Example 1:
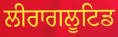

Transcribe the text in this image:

ਲੀਰਾਗਲੂਟਿਡ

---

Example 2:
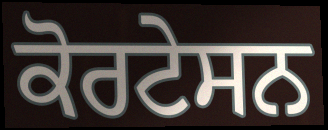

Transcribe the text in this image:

ਕੋਰਟੇਸਨ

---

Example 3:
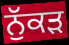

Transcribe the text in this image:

ਨੁੱਕਡ਼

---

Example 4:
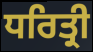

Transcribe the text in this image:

ਧਰਿਤ੍ਰੀ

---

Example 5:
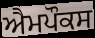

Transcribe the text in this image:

ਐਮਪੌਕਸ